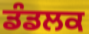
ਡੰਡਲਕ